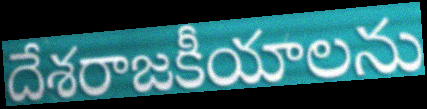
దేశరాజకీయాలను